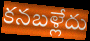
కనబళ్లేదు